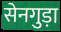
सेनगुड़ा